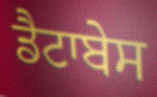
ਡੈਟਾਬੇਸ